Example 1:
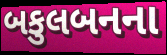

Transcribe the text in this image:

બકુલબનના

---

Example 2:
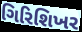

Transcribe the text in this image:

ગિરિશિખર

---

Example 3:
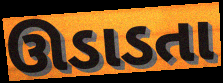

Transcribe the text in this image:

ઊડાડતા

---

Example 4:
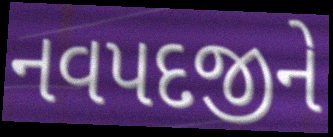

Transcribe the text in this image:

નવપદજીને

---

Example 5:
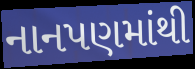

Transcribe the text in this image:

નાનપણમાંથી